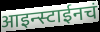
आइन्स्टाईनचं